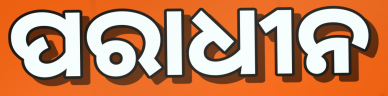
ପରାଧୀନ